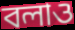
বলাও